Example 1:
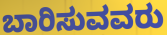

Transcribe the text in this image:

ಬಾರಿಸುವವರು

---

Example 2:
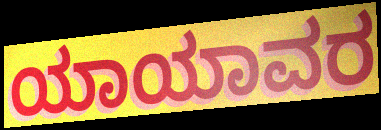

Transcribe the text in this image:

ಯಾಯಾವರ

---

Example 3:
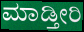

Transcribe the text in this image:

ಮಾಡ್ತೀರಿ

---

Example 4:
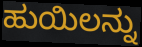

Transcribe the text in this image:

ಹುಯಿಲನ್ನು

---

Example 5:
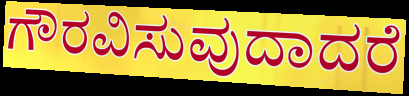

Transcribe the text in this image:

ಗೌರವಿಸುವುದಾದರೆ